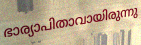
ഭാര്യാപിതാവായിരുന്നു